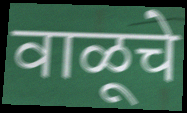
वाळूचे